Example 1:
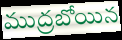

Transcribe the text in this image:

ముద్రబోయిన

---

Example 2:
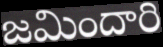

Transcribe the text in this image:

జమిందారి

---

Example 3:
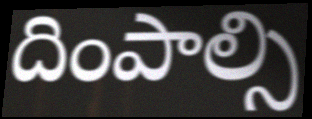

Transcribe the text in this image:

దింపాల్సి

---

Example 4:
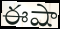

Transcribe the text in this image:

ఈషా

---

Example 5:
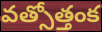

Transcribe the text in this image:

వత్సోత్తంక